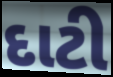
દાટી